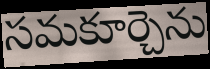
సమకూర్చెను